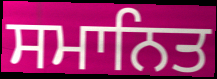
ਸਮਾਨਿਤ